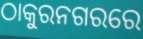
ଠାକୁରନଗରରେ